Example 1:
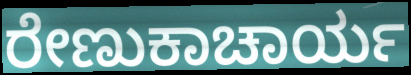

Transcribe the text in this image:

ರೇಣುಕಾಚಾರ್ಯ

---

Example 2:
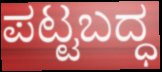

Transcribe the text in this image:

ಪಟ್ಟಬದ್ಧ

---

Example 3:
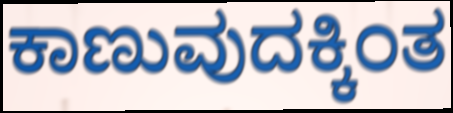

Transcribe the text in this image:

ಕಾಣುವುದಕ್ಕಿಂತ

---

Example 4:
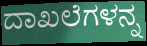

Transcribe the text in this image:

ದಾಖಲೆಗಳನ್ನ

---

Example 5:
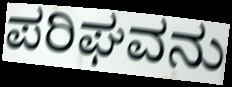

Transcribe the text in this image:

ಪರಿಘವನು